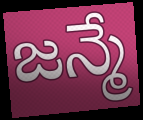
జన్మే